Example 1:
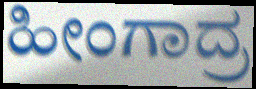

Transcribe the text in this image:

ಹೀಂಗಾದ್ರ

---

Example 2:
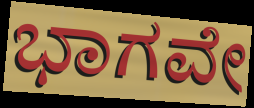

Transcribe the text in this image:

ಭಾಗವೇ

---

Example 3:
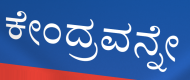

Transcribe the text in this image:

ಕೇಂದ್ರವನ್ನೇ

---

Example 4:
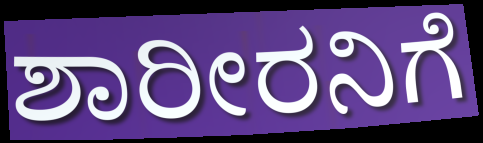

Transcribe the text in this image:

ಶಾರೀರನಿಗೆ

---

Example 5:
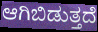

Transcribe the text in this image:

ಆಗಿಬಿಡುತ್ತದೆ